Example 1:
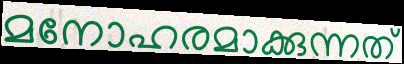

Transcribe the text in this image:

മനോഹരമാക്കുന്നത്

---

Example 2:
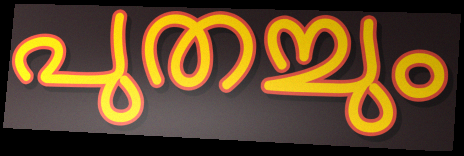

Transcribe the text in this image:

പുതച്ചും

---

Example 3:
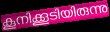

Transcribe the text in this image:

കൂനിക്കൂടിയിരുന്നു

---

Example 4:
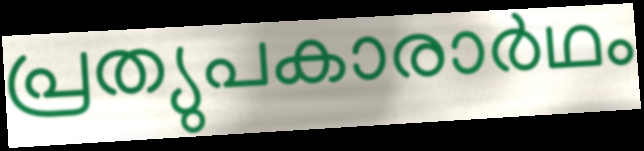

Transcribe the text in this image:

പ്രത്യുപകാരാർഥം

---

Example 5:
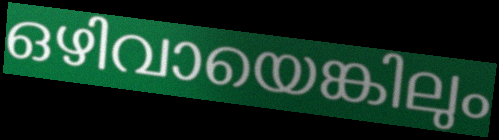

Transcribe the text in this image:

ഒഴിവായെങ്കിലും